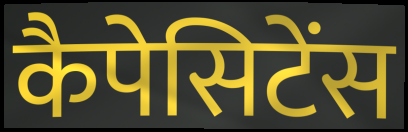
कैपेसिटेंस